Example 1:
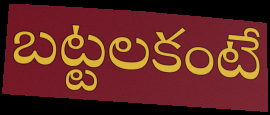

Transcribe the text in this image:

బట్టలకంటే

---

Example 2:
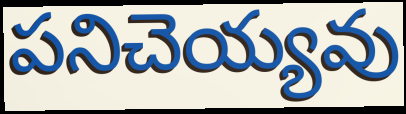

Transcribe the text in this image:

పనిచెయ్యవు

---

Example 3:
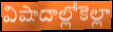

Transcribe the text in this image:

విషాదాల్లోకెల్లా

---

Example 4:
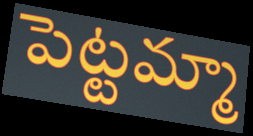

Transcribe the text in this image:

పెట్టమ్మా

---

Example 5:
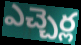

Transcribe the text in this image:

ఎచ్చెర్ల